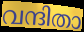
വന്ദിതാ